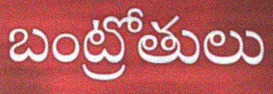
బంట్రోతులు